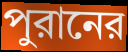
পুরানের